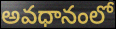
అవధానంలో